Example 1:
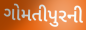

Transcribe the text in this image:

ગોમતીપુરની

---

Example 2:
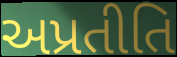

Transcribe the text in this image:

અપ્રતીતિ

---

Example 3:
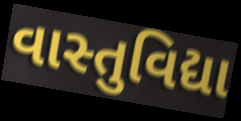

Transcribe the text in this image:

વાસ્તુવિદ્યા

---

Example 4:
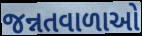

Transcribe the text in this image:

જન્નતવાળાઓ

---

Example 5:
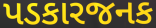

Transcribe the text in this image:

પડકારજનક